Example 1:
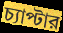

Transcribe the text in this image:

চ্যাপ্টার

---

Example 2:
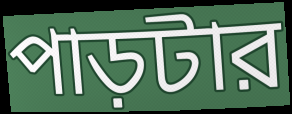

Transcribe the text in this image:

পাড়টার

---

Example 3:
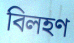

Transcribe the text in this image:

বিলহণ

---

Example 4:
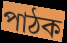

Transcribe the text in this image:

পাঠক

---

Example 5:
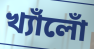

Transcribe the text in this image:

খ্যাঁলোঁ